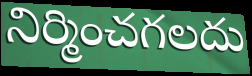
నిర్మించగలదు